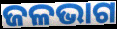
ଜଳଭାଗ